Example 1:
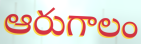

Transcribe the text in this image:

ఆరుగాలం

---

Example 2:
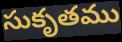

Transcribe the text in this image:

సుకృతము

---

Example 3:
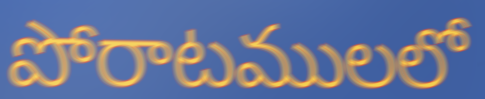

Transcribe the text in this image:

పోరాటములలో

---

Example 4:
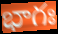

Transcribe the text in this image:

భాగః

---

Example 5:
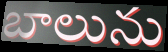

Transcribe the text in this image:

బాలును